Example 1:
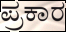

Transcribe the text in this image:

ಪ್ರಕಾರ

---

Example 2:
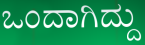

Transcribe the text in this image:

ಒಂದಾಗಿದ್ದು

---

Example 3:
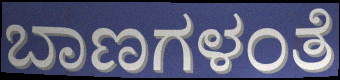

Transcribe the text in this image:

ಬಾಣಗಳಂತೆ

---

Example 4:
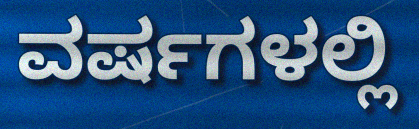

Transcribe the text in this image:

ವರ್ಷಗಳಲ್ಲಿ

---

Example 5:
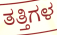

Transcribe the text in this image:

ತತ್ತಿಗಳ